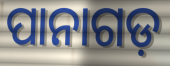
ପାନାଗଡ଼